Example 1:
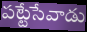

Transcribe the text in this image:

పట్టేసేవాడు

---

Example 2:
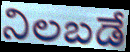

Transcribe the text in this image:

నిలబడే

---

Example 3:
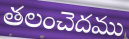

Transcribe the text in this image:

తలంచెదము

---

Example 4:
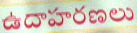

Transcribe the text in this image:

ఉదాహరణలు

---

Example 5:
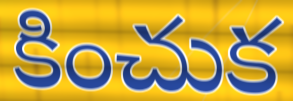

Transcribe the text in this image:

కించుక